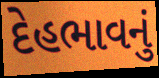
દેહભાવનું